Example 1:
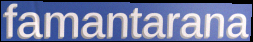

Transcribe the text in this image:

famantarana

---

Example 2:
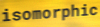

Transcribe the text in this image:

isomorphic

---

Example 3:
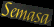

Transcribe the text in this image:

Semasa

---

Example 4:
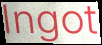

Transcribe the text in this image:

Ingot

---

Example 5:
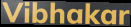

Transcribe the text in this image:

Vibhakar